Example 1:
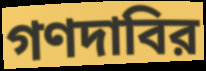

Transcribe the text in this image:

গণদাবির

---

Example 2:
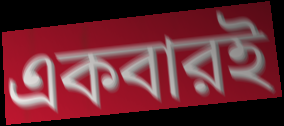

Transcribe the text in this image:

একবারই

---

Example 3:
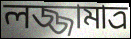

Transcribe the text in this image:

লজ্জামাত্র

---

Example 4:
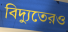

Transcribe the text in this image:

বিদ্যুতেরও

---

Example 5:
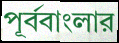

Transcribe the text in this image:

পূর্ববাংলার